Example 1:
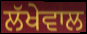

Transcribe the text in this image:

ਲੱਖੇਵਾਲ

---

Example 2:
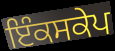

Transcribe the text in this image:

ਇੰਕਸਕੇਪ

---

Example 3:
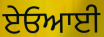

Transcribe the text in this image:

ਏਓਆਈ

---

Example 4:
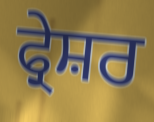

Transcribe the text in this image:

ਫ੍ਰੇਸ਼ਰ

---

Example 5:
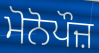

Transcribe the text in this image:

ਮੋਨੋਪੌਜ਼